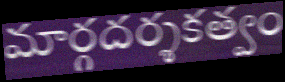
మార్గదర్శకత్వం